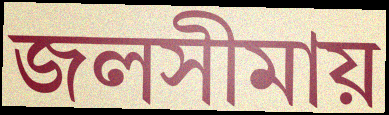
জলসীমায়